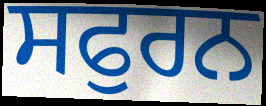
ਸਫੁਰਨ